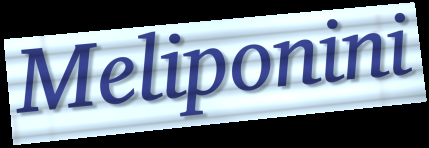
Meliponini